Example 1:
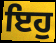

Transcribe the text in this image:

ਇਹੁ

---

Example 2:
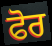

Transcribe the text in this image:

ਫੋਰ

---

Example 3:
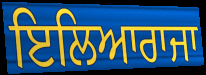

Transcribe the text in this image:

ਇਲਿਆਰਾਜਾ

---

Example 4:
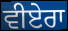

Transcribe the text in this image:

ਵੀਏਰਾ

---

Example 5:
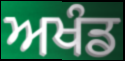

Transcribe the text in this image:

ਅਖੰਡ